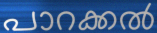
പാറക്കൽ